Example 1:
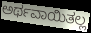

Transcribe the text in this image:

ಅರ್ಥವಾಯಿತಲ್ಲ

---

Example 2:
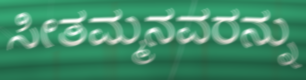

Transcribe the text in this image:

ಸೀತಮ್ಮನವರನ್ನು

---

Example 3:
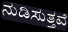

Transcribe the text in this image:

ನುಡಿಸುತ್ತವೆ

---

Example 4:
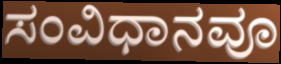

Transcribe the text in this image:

ಸಂವಿಧಾನವೂ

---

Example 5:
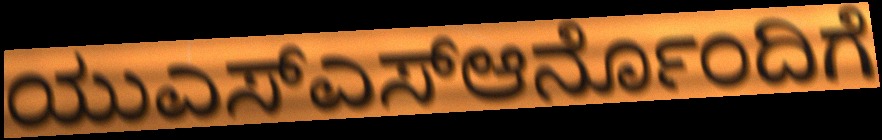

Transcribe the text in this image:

ಯುಎಸ್ಎಸ್ಆರ್ನೊಂದಿಗೆ